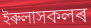
ইৰুলাসকলৰ